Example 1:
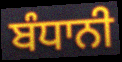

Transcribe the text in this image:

ਬੰਧਾਨੀ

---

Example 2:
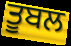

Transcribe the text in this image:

ਤੂਬਲ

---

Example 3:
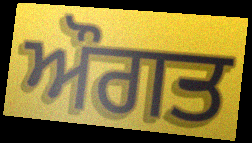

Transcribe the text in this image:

ਔਗਤ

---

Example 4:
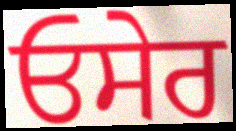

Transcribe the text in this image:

ਓਸੇਰ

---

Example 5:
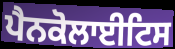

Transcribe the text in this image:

ਪੈਨਕੋਲਾਈਟਿਸ